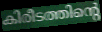
കിരീടത്തിന്റെ